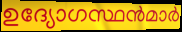
ഉദ്യോഗസ്ഥൻമാർ